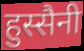
हुस्सैनी